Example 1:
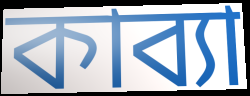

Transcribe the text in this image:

কাব্যা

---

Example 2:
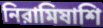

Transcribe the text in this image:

নিরামিষাশি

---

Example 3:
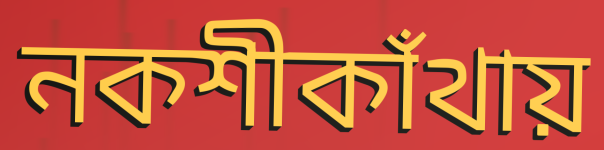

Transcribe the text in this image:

নকশীকাঁথায়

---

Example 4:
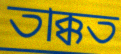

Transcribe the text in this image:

তাক্কত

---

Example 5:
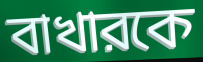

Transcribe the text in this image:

বাখারকে